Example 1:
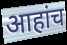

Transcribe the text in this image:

आहांच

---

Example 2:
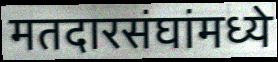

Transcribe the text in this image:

मतदारसंघांमध्ये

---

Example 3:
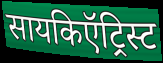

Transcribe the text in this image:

सायकिऍट्रिस्ट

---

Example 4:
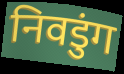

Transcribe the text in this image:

निवडुंग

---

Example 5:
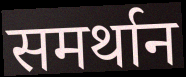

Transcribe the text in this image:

समर्थान